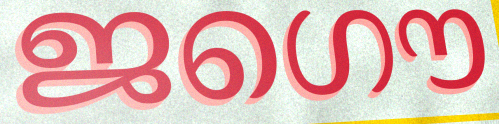
ജഗൌ